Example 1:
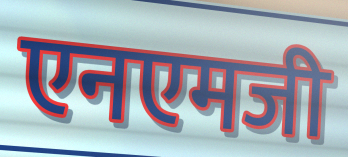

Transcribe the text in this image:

एनएमजी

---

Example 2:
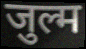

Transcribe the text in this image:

जुल्म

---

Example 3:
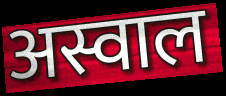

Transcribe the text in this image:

अस्वाल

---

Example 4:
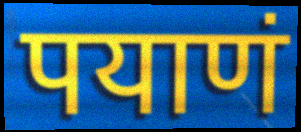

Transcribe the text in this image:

पयाणं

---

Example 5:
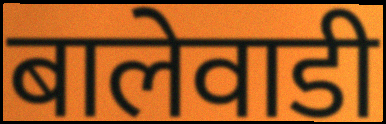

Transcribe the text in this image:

बालेवाडी